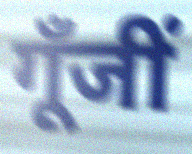
गूँजीं